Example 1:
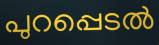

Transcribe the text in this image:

പുറപ്പെടൽ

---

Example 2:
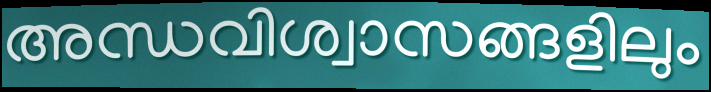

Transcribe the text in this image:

അന്ധവിശ്വാസങ്ങളിലും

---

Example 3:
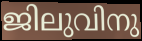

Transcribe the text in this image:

ജിലുവിനു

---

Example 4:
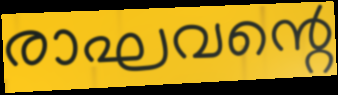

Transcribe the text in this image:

രാഘവന്റെ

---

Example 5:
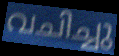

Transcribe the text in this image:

വചിച്ചു